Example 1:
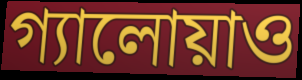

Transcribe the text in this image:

গ্যালোয়াও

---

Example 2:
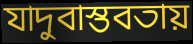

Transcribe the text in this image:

যাদুবাস্তবতায়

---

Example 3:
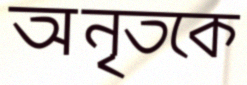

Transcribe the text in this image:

অনৃতকে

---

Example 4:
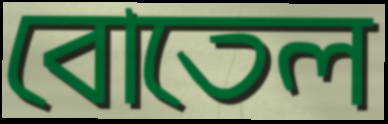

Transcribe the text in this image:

বোতেল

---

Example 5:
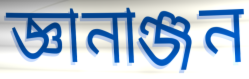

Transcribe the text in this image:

জ্ঞানাঞ্জন